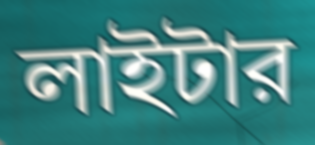
লাইটার